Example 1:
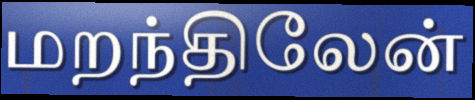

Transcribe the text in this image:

மறந்திலேன்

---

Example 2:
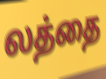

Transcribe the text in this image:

லத்தை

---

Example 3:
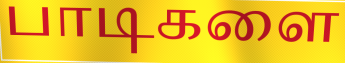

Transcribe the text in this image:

பாடிகளை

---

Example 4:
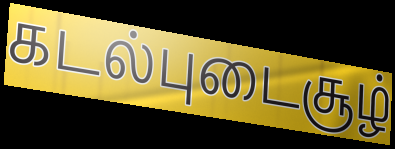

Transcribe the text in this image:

கடல்புடைசூழ்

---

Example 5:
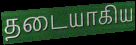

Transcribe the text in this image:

தடையாகிய